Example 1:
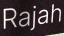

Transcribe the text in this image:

Rajah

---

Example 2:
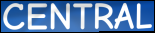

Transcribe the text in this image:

CENTRAL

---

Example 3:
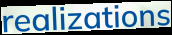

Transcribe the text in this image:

realizations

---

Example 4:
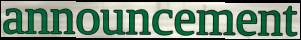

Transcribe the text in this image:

announcement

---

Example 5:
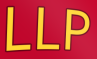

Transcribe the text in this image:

LLP